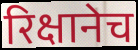
रिक्षानेच